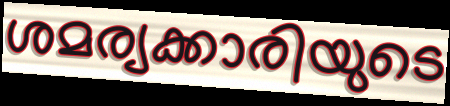
ശമര്യക്കാരിയുടെ